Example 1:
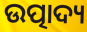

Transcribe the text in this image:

ଉତ୍ପାଦ୍ୟ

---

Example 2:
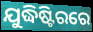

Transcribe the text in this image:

ଯୁଦ୍ଧିଷ୍ଟିରରେ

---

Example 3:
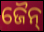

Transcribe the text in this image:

ଜୈନ୍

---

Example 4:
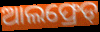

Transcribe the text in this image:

ଆଲଫ୍ରେଡ୍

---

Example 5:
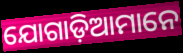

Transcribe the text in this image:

ଯୋଗାଡ଼ିଆମାନେ